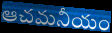
ఆచమనీయం